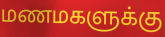
மணமகளுக்கு